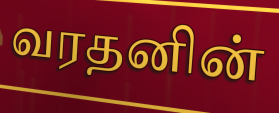
வரதனின்